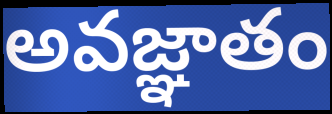
అవజ్ఞాతం